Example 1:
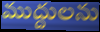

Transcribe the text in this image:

ముద్దులను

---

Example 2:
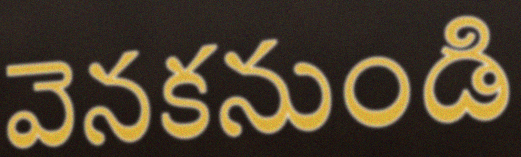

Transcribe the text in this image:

వెనకనుండి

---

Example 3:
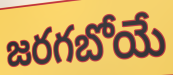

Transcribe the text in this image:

జరగబోయే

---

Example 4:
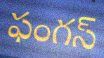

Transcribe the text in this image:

ఫంగస్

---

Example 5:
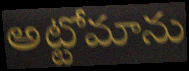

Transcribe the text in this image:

అట్టోమాను